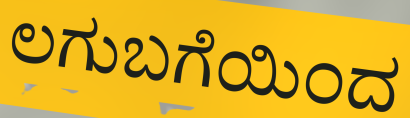
ಲಗುಬಗೆಯಿಂದ